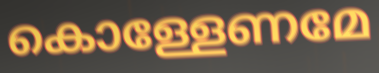
കൊള്ളേണമേ